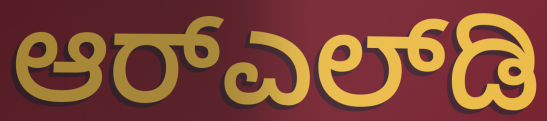
ಆರ್‌ಎಲ್‌ಡಿ